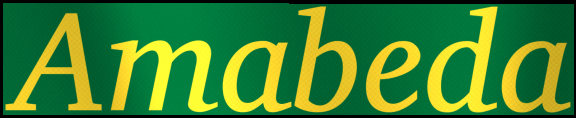
Amabeda